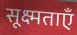
सूक्ष्मताएँ